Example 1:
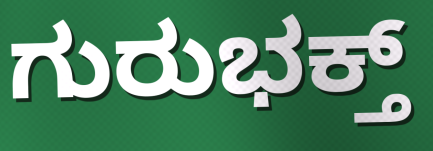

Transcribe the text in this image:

ಗುರುಭಕ್ತ್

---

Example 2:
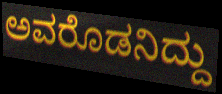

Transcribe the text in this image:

ಅವರೊಡನಿದ್ದು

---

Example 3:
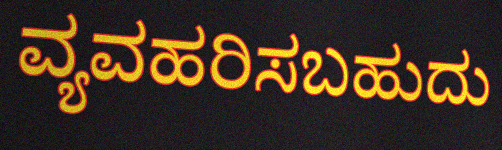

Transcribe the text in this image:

ವ್ಯವಹರಿಸಬಹುದು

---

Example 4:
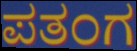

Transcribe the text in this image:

ಪತಂಗ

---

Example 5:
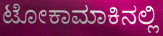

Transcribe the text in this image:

ಟೋಕಾಮಾಕಿನಲ್ಲಿ